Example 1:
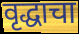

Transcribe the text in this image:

वृद्धाचा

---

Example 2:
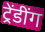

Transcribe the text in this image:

ट्रेंडींग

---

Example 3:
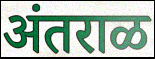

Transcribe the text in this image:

अंतराळ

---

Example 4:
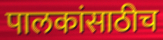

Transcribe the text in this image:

पालकांसाठीच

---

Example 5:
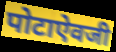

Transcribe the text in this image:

पोटाऐवजी